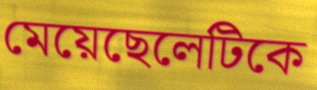
মেয়েছেলেটিকে